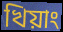
খিয়াং